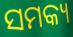
ସମକ୍ୟ